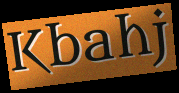
Kbahj